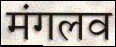
मंगलव